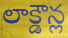
లాక్డౌన్ల